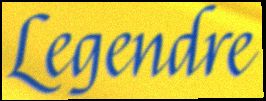
Legendre